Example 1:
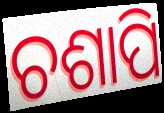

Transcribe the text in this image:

ଚଶାପି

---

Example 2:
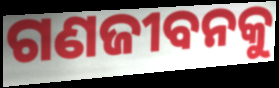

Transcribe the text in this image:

ଗଣଜୀବନକୁ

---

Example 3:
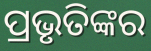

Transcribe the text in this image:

ପ୍ରଭୃତିଙ୍କର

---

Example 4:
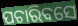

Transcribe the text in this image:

ପଚାରିବସେ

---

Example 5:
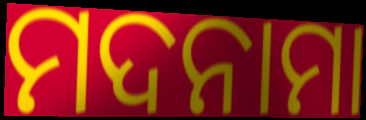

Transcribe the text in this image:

ମଦନାମା